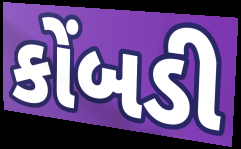
કોંબડી